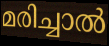
മരിച്ചാൽ